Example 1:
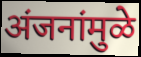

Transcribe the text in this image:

अंजनांमुळे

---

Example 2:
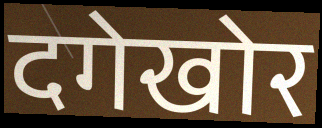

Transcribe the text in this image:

दगेखोर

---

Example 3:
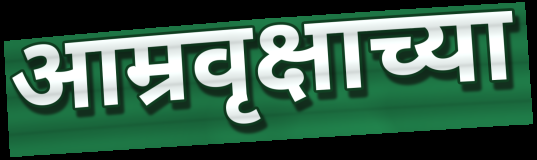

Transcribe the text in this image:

आम्रवृक्षाच्या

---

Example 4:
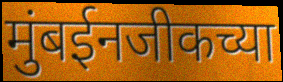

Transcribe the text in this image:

मुंबईनजीकच्या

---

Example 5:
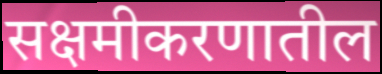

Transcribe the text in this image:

सक्षमीकरणातील